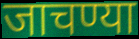
जाचण्या